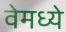
वेमध्ये